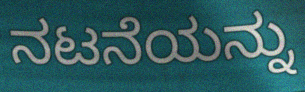
ನಟನೆಯನ್ನು